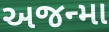
અજન્મા